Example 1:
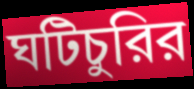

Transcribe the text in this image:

ঘটিচুরির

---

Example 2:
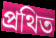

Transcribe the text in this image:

প্রথিত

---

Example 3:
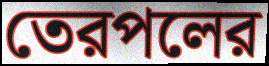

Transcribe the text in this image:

তেরপলের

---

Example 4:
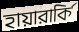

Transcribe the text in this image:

হায়ারার্কি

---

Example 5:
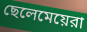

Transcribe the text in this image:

ছেলেমেয়েরা